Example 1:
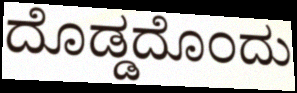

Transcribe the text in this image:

ದೊಡ್ಡದೊಂದು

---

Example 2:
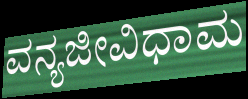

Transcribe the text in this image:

ವನ್ಯಜೀವಿಧಾಮ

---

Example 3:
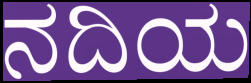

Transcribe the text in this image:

ನದಿಯ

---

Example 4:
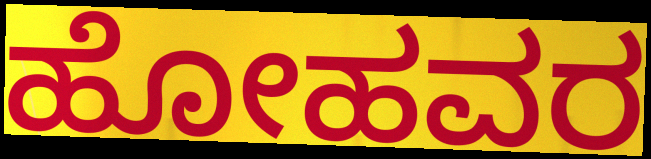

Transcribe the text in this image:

ಹೋಹವರ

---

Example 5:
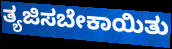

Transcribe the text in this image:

ತ್ಯಜಿಸಬೇಕಾಯಿತು